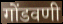
गोंडवणी